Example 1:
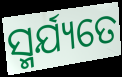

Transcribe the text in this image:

ସ୍ମର୍ଯ୍ୟତେ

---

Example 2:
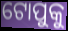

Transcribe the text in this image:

ଟୋପୁକୁ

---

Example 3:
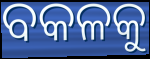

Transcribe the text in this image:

ବକଳକୁ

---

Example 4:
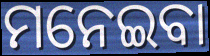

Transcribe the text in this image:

ମନେଇବା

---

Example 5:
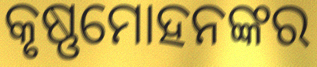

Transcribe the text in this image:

କୃଷ୍ଣମୋହନଙ୍କର